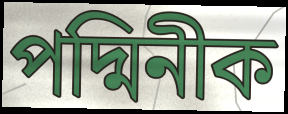
পদ্মিনীক